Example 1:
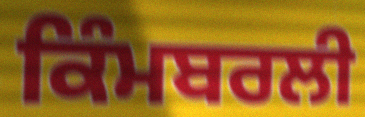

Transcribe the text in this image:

ਕਿੰਮਬਰਲੀ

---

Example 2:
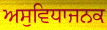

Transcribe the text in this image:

ਅਸੁਵਿਧਾਜਨਕ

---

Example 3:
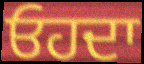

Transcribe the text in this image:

ਓਹਦਾ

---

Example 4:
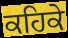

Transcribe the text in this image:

ਕਹਿਕੇ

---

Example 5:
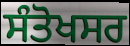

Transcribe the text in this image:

ਸੰਤੋਖਸਰ